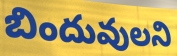
బిందువులని